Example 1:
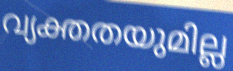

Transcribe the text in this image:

വ്യക്തതയുമില്ല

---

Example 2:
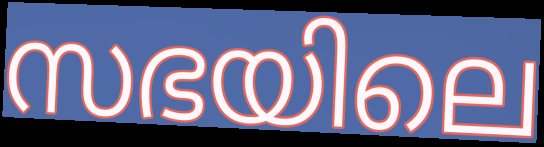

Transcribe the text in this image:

സഭയിലെ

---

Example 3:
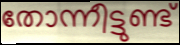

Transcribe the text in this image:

തോന്നീട്ടുണ്ട്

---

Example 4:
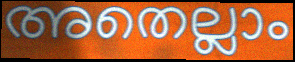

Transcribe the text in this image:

അതെല്ലാം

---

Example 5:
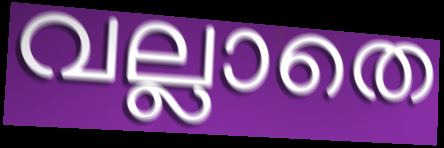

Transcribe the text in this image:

വല്ലാതെ